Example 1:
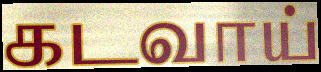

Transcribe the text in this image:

கடவாய்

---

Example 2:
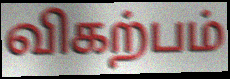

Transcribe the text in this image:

விகற்பம்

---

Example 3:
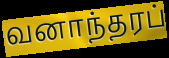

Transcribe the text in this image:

வனாந்தரப்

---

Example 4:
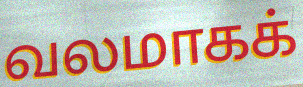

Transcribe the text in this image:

வலமாகக்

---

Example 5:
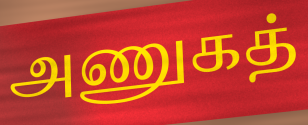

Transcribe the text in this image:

அணுகத்